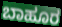
ಬಾಹೂರ